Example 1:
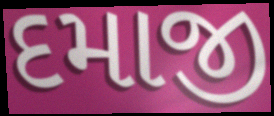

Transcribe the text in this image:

દમાજી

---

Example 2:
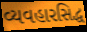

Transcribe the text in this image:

વ્યવહારસિદ્ધ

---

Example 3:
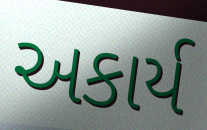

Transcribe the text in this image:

અકાર્ય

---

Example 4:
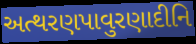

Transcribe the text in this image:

અત્થરણપાવુરણાદીનિ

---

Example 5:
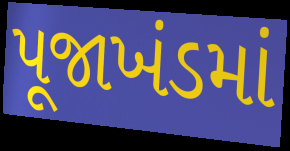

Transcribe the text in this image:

પૂજાખંડમાં